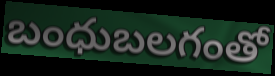
బంధుబలగంతో